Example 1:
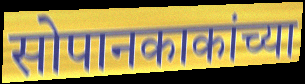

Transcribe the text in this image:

सोपानकाकांच्या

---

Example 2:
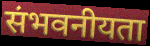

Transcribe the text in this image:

संभवनीयता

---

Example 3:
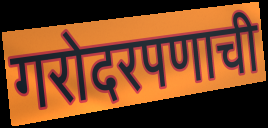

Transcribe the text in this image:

गरोदरपणाची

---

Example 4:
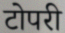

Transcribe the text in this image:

टोपरी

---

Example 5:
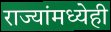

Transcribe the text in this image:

राज्यांमध्येही